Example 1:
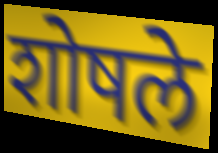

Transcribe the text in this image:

शोषले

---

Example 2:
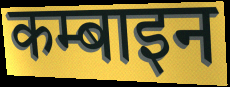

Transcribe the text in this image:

कम्बाइन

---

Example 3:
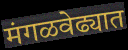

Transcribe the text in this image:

मंगळवेढ्यात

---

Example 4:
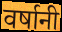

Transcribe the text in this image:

वर्षानी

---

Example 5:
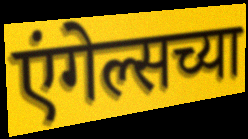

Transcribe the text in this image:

एंगेल्सच्या